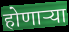
होणाऱ्या